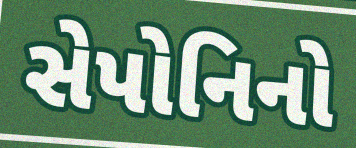
સેપોનિનો